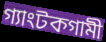
গ্যাংটকগামী